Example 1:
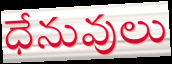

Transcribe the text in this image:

ధేనువులు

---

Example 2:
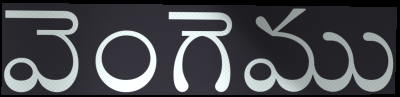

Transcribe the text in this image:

వెంగెము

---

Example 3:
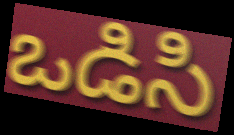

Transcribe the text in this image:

ఒడిసి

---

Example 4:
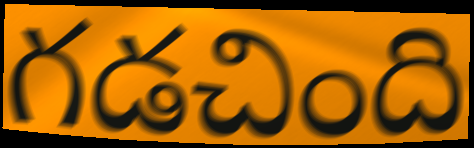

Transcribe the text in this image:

గడచింది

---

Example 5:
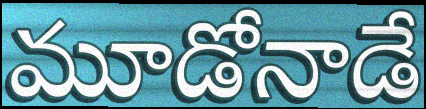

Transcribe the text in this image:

మూడోనాడే